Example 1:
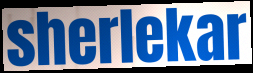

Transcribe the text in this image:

sherlekar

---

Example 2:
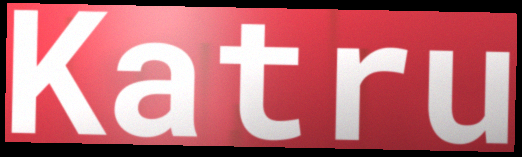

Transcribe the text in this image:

Katru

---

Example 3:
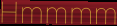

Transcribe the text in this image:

Hmmmm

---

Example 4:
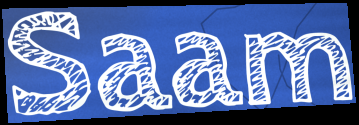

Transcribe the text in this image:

Saam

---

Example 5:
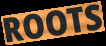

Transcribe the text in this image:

ROOTS